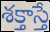
శక్తాస్తే